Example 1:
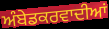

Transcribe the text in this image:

ਅੰਬੇਡਕਰਵਾਦੀਆਂ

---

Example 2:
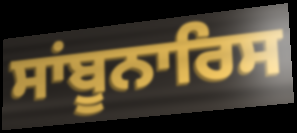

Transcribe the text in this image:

ਸਾਂਬੂਨਾਰਿਸ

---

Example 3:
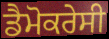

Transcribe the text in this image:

ਡੈਮੋਕਰੇਸੀ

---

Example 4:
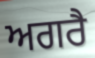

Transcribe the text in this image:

ਅਗਰੈ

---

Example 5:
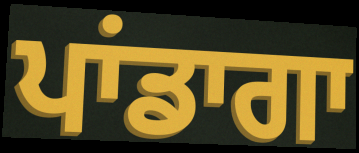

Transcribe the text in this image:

ਪਾਂਡਾਗਾ